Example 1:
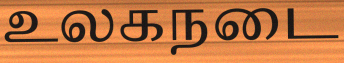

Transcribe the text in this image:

உலகநடை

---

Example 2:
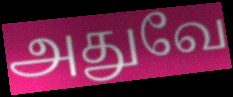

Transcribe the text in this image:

அதுவே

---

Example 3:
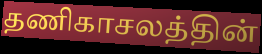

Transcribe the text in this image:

தணிகாசலத்தின்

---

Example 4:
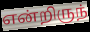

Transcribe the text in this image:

என்றிருந்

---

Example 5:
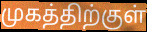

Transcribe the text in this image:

முகத்திற்குள்